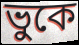
ভুকে